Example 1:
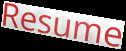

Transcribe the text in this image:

Resume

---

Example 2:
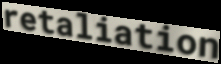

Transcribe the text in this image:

retaliation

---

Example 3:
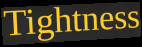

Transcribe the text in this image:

Tightness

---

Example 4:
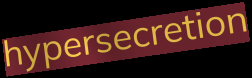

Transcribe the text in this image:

hypersecretion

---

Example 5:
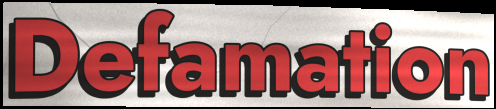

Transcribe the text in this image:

Defamation